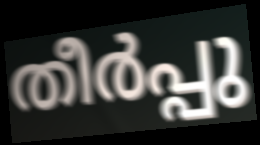
തീർപ്പു